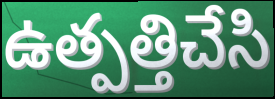
ఉత్పత్తిచేసి